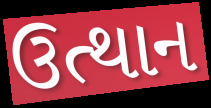
ઉત્થાન